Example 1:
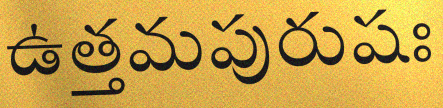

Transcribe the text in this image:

ఉత్తమపురుషః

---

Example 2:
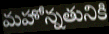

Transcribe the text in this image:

మహోన్నతునికి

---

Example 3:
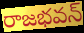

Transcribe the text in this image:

రాజభవన్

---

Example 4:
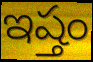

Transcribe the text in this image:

ఇష్తం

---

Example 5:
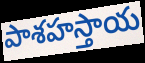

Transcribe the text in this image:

పాశహస్తాయ